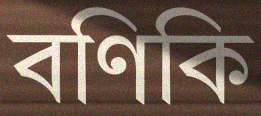
বণিকি